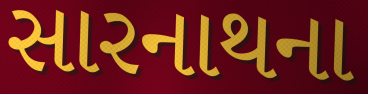
સારનાથના